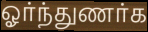
ஓர்ந்துணர்க